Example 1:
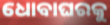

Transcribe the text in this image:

ଧୋବାଘରକୁ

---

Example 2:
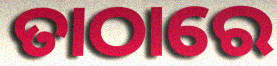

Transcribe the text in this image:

ତାଠାରେ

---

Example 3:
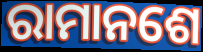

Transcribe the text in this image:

ରାମାନଶେ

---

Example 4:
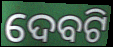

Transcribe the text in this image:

ଦେବଟି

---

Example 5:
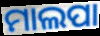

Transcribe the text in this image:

ମାଲପା